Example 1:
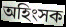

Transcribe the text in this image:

অহিংসক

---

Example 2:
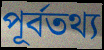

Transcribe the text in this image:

পূর্বতথ্য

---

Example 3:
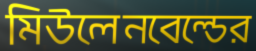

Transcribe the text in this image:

মিউলেনবেল্ডের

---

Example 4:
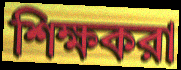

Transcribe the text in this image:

শিক্ষকরা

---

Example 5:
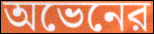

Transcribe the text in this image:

অভেনের